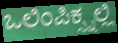
ಒಲಿಂಪಿಕ್ಸ್ನಲ್ಲಿ